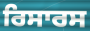
ਰਿਸਾਰਸ